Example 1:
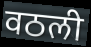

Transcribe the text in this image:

वठली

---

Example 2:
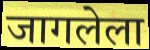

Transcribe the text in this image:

जागलेला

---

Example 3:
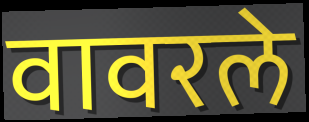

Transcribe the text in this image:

वावरले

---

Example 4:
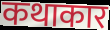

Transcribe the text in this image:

कथाकार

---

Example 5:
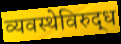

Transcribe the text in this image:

व्यवस्थेविरुद्ध